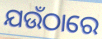
ଯଉଁଠାରେ